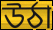
উঠা